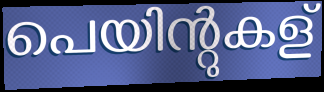
പെയിന്റുകള്